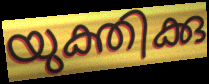
യുക്തിക്കു